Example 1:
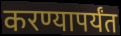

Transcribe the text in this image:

करण्यापर्यंत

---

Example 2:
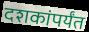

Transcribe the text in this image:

दशकांपर्यंत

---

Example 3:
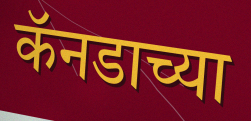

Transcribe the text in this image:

कॅनडाच्या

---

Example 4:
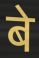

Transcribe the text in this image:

बे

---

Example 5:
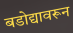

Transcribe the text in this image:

बडोद्यावरून